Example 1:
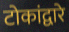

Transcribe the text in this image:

टोकांद्वारे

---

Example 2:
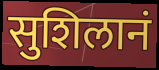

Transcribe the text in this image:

सुशिलानं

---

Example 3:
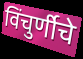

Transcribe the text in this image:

विंचुर्णीचे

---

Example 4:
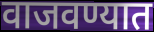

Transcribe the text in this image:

वाजवण्यात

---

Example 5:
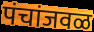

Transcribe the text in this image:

पंचांजवळ